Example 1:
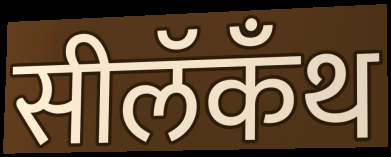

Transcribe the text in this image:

सीलॅकँथ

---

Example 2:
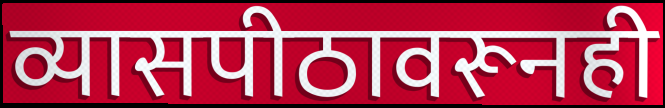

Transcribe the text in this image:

व्यासपीठावरूनही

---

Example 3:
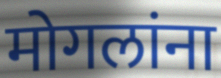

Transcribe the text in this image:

मोगलांना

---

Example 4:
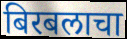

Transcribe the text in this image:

बिरबलाचा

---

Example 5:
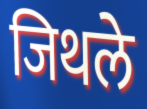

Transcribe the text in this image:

जिथले